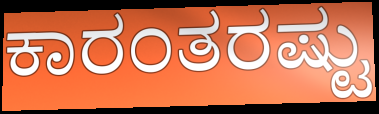
ಕಾರಂತರಷ್ಟು